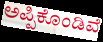
ಅಪ್ಪಿಕೊಂಡಿವೆ